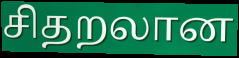
சிதறலான